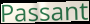
Passant